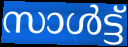
സാൾട്ട്